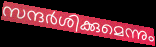
സന്ദർശിക്കുമെന്നും